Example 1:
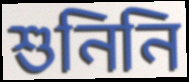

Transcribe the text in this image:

শুনিনি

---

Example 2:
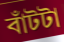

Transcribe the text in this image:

বাঁটটা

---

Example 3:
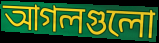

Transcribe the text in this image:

আগলগুলো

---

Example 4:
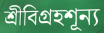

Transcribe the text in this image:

শ্রীবিগ্রহশূন্য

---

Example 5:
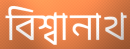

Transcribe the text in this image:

বিশ্বানাথ